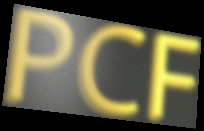
PCF